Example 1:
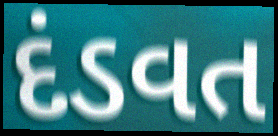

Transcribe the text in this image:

દંડવત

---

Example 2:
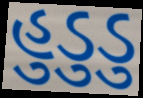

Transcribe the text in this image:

હુડુડુ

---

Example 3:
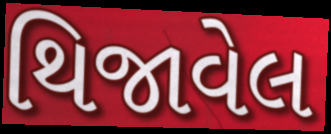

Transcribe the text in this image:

થિજાવેલ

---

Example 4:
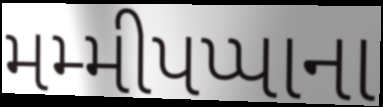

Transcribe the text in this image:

મમ્મીપપ્પાના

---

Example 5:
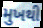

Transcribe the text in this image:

મુખથી